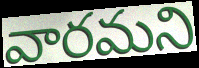
వారమని